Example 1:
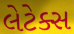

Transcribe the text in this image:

લેટેક્સ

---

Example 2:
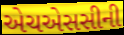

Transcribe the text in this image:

એચએસસીની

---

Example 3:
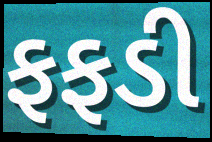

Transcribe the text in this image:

ફફડી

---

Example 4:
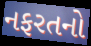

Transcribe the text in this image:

નફરતનો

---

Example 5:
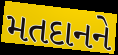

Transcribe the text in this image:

મતદાનને